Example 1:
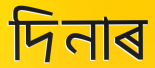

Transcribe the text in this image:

দিনাৰ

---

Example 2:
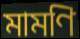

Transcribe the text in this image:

মামণি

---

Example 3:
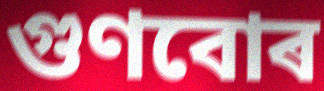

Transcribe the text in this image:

গুণবোৰ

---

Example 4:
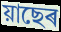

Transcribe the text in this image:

য়াছেৰ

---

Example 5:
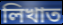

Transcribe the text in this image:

লিখাত